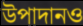
উপাদানও